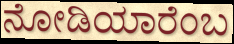
ನೋಡಿಯಾರೆಂಬ